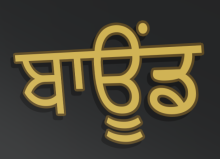
ਬਾਊਂਡ